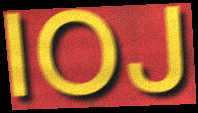
IOJ